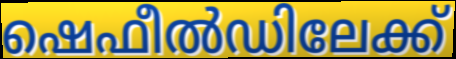
ഷെഫീൽഡിലേക്ക്